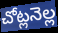
చోట్లనెల్ల